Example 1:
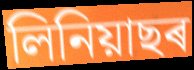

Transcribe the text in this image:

লিনিয়াছৰ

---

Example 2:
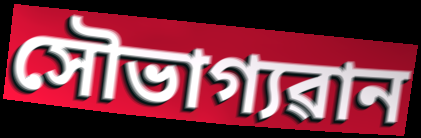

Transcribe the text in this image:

সৌভাগ্যৱান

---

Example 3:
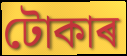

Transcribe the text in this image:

টোকাৰ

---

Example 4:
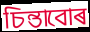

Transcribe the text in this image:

চিন্তাবোৰ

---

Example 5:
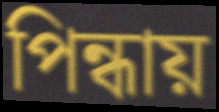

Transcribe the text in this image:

পিন্ধায়